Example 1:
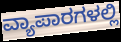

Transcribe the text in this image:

ವ್ಯಾಪಾರಗಳಲ್ಲಿ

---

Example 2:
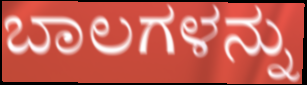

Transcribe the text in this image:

ಬಾಲಗಳನ್ನು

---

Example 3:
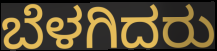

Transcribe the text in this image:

ಬೆಳಗಿದರು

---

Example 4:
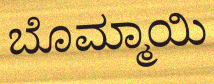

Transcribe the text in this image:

ಬೊಮ್ಮಾಯಿ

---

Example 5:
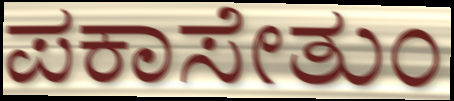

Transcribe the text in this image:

ಪಕಾಸೇತುಂ